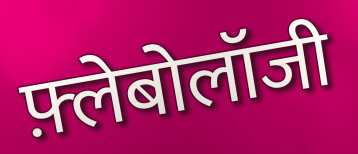
फ़्लेबोलॉजी